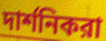
দার্শনিকরা